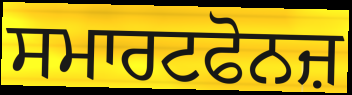
ਸਮਾਰਟਫੋਨਜ਼